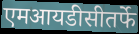
एमआयडीसीतर्फे